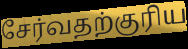
சேர்வதற்குரிய